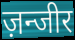
ज़न्जीर